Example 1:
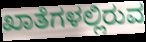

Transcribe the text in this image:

ಖಾತೆಗಳಲ್ಲಿರುವ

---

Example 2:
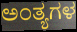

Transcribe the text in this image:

ಅಂತ್ಯಗಳ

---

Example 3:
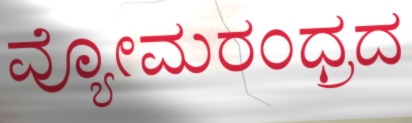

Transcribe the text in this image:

ವ್ಯೋಮರಂಧ್ರದ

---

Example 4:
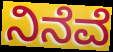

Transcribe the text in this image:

ನಿನೆವೆ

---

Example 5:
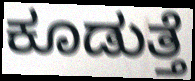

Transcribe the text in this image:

ಕೂಡುತ್ತೆ